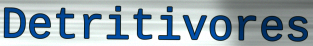
Detritivores